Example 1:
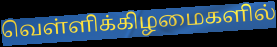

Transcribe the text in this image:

வெள்ளிக்கிழமைகளில்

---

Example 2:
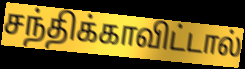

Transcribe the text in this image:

சந்திக்காவிட்டால்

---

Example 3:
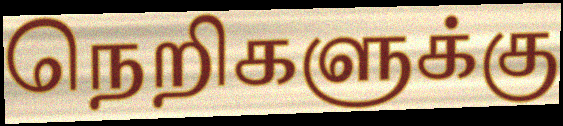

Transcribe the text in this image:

நெறிகளுக்கு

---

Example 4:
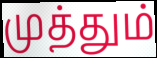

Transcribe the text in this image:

முத்தும்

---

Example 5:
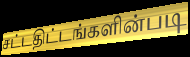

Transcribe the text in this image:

சட்டதிட்டங்களின்படி